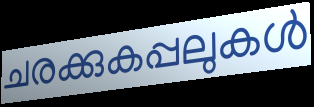
ചരക്കുകപ്പലുകൾ